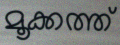
മൂക്കത്ത്